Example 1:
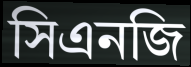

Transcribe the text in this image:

সিএনজি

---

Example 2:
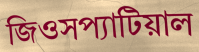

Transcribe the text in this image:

জিওসপ্যাটিয়াল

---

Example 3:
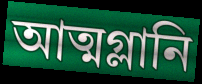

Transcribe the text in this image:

আত্মগ্লানি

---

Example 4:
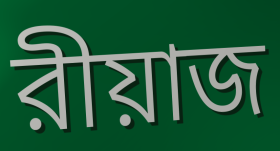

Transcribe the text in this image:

রীয়াজ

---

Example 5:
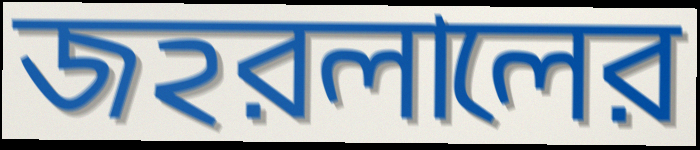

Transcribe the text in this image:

জহরলালের